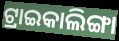
ଟ୍ରାଇକାଲିଙ୍ଗା